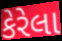
કેરેલા